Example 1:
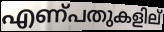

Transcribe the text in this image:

എണ്പതുകളില്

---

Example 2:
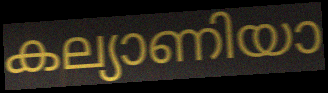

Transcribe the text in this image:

കല്യാണിയാ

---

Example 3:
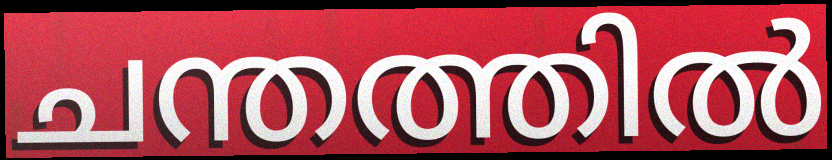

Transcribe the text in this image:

ചന്തത്തിൽ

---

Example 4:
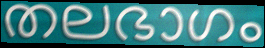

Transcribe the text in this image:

തലഭാഗം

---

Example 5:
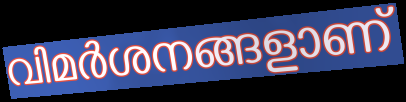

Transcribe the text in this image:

വിമർശനങ്ങളാണ്